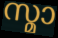
സ്മാ